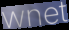
wnet